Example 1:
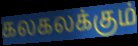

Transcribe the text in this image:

கலகலக்கும்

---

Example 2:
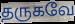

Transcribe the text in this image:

தருகவே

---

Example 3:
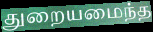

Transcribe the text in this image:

துறையமைந்த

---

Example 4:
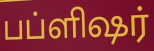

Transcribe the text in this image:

பப்ளிஷர்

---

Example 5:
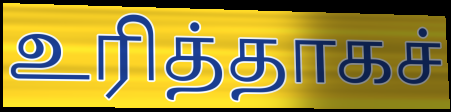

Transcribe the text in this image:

உரித்தாகச்